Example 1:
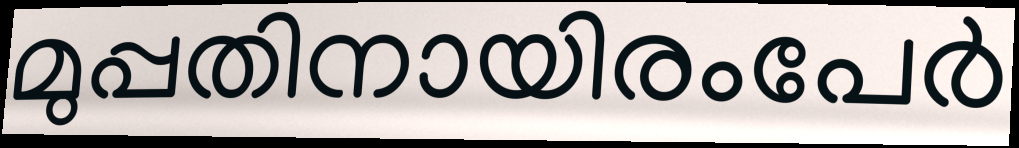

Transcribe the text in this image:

മുപ്പതിനായിരംപേർ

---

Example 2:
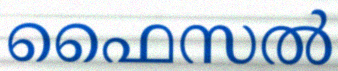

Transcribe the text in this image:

ഫൈസൽ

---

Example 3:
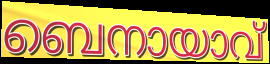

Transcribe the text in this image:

ബെനായാവ്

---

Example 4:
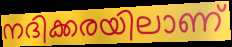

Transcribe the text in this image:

നദിക്കരയിലാണ്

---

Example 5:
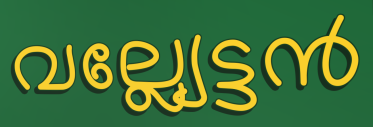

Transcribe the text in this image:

വല്ല്യേട്ടൻ